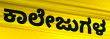
ಕಾಲೇಜುಗಳ